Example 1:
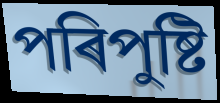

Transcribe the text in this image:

পৰিপুষ্টি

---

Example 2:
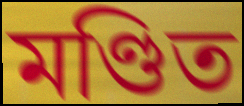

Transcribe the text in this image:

মণ্ডিত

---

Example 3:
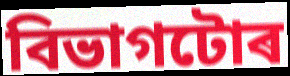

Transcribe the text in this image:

বিভাগটোৰ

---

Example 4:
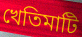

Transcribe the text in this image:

খেতিমাটি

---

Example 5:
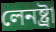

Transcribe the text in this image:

লেনষ্ট্ৰা